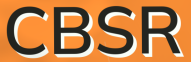
CBSR